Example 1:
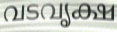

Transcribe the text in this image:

വടവൃക്ഷ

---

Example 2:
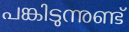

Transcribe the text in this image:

പങ്കിടുന്നുണ്ട്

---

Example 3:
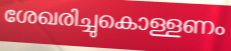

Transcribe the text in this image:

ശേഖരിച്ചുകൊള്ളണം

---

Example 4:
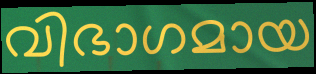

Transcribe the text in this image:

വിഭാഗമായ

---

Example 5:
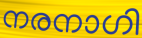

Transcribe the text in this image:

നരനാഗി